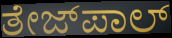
ತೇಜ್‌ಪಾಲ್